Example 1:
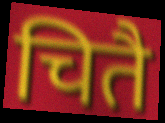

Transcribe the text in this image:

चितै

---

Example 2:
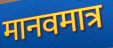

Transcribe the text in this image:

मानवमात्र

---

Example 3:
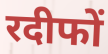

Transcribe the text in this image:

रदीफों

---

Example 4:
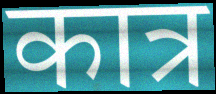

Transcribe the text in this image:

कात्र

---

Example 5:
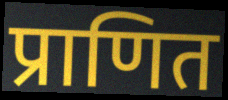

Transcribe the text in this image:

प्राणित